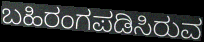
ಬಹಿರಂಗಪಡಿಸಿರುವ